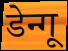
डेन्गू